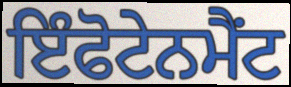
ਇੰਫੋਟੇਨਮੈਂਟ